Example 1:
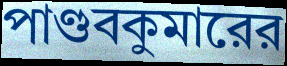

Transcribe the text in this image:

পাণ্ডবকুমারের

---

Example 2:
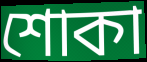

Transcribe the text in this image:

শোকা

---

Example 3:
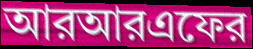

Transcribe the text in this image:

আরআরএফের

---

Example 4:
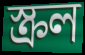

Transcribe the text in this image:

স্ক্রল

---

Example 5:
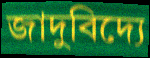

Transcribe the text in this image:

জাদুবিদ্যে